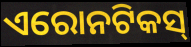
ଏରୋନଟିକସ୍